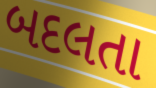
બદલતા